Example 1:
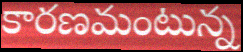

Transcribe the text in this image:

కారణమంటున్న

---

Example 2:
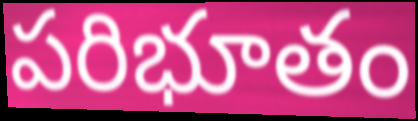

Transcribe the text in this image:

పరిభూతం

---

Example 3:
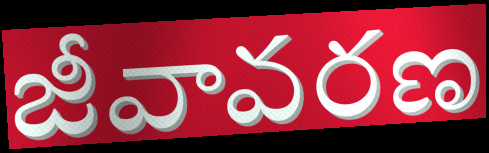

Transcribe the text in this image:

జీవావరణ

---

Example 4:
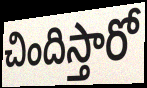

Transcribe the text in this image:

చిందిస్తారో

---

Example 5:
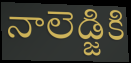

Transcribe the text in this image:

నాలెడ్జికి